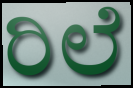
ರಿಲೆ